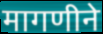
मागणीने